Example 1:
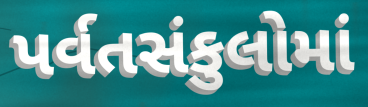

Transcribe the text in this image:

પર્વતસંકુલોમાં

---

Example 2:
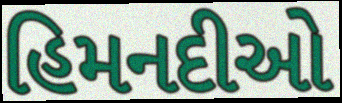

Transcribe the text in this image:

હિમનદીઓ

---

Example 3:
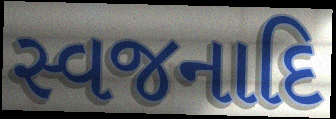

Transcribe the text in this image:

સ્વજનાદિ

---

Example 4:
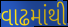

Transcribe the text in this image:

વાઢમાંથી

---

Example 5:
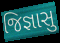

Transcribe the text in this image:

જિજ્ઞાસુ